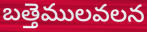
బత్తెములవలన